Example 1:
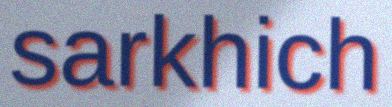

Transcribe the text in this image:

sarkhich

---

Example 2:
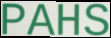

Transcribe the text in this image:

PAHS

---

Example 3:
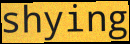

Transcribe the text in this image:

shying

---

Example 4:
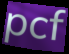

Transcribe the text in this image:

pcf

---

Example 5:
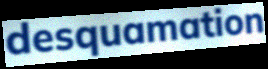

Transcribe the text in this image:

desquamation